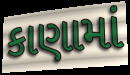
કાણામાં